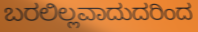
ಬರಲಿಲ್ಲವಾದುದರಿಂದ